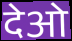
देओ